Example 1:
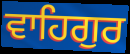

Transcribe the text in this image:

ਵਾਹਿਗੁਰ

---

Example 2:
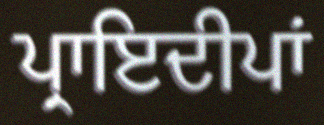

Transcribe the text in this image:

ਪ੍ਰਾਇਦੀਪਾਂ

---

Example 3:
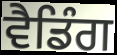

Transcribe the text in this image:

ਵੈਡਿੰਗ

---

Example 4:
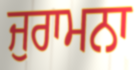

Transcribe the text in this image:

ਜੁਰਾਮਨਾ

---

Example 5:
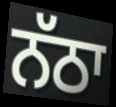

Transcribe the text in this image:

ਨੱਠਾ